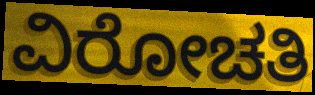
ವಿರೋಚತಿ